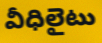
వీధిలైటు